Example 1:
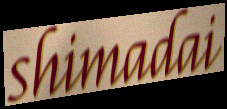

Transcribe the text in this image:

shimadai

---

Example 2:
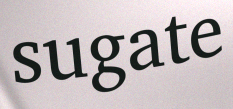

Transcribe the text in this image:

sugate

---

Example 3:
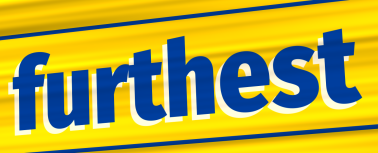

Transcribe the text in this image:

furthest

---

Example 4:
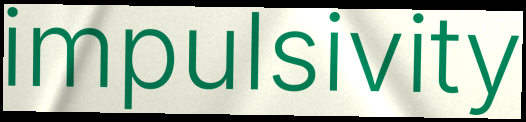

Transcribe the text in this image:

impulsivity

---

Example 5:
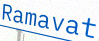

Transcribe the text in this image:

Ramavat